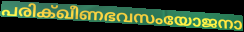
പരിക്ഖീണഭവസംയോജനാ